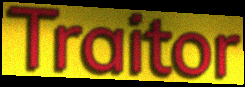
Traitor